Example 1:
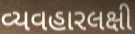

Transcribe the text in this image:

વ્યવહારલક્ષી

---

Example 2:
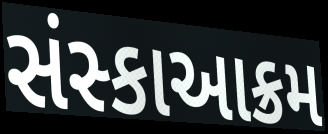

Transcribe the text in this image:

સંસ્કાઆક્રમ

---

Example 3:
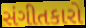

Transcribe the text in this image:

સંગીતકારો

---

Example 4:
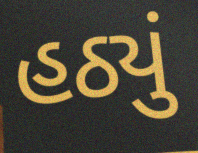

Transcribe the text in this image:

હઠ્યું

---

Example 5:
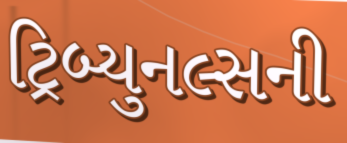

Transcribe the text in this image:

ટ્રિબ્યુનલ્સની